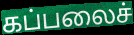
கப்பலைச்